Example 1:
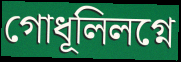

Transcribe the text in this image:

গোধূলিলগ্নে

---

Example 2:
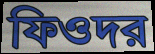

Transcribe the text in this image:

ফিওদর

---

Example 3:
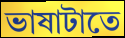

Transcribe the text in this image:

ভাষাটাতে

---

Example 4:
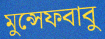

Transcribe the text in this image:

মুন্সেফবাবু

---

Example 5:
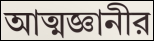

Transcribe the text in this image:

আত্মজ্ঞানীর